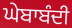
ਘੇਬਾਬੰਦੀ